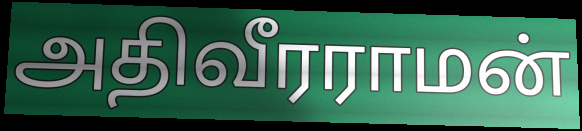
அதிவீரராமன்